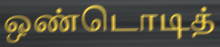
ஒண்டொடித்